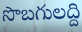
సొబగులద్ది